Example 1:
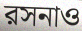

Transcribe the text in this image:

রসনাও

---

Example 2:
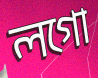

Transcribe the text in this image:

লগো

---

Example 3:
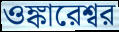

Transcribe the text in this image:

ওঙ্কারেশ্বর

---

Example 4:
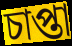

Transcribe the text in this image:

চাপ্তা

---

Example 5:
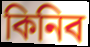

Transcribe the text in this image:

কিনিব